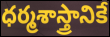
ధర్మశాస్త్రానికే